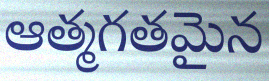
ఆత్మగతమైన